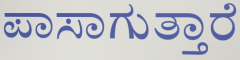
ಪಾಸಾಗುತ್ತಾರೆ